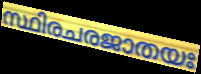
സ്ഥിരചരജാതയഃ